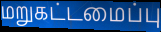
மறுகட்டமைப்பு